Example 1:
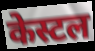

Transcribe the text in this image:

केस्टल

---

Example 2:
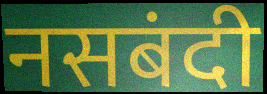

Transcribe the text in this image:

नसबंदी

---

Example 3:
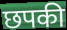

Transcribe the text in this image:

छपकी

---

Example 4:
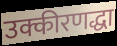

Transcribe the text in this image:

उक्कीरणद्धा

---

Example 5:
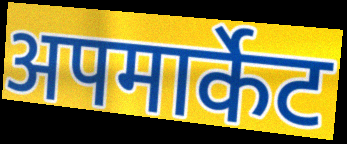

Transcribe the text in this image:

अपमार्केट